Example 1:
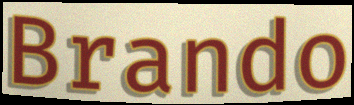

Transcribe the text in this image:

Brando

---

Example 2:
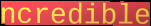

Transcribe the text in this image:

ncredible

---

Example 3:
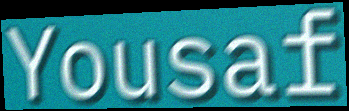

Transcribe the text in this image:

Yousaf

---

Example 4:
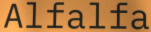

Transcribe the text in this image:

Alfalfa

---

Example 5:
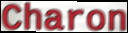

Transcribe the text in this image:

Charon